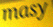
masy